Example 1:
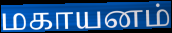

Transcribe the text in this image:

மகாயனம்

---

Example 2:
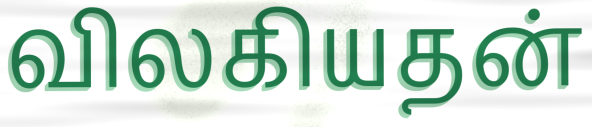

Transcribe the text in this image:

விலகியதன்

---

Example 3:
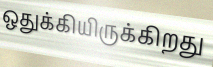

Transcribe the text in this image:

ஒதுக்கியிருக்கிறது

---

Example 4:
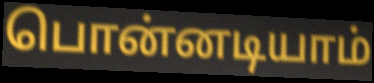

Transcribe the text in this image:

பொன்னடியாம்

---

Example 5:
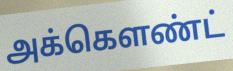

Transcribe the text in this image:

அக்கெளண்ட்